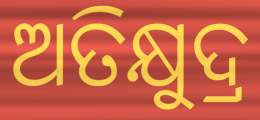
ଅତିକ୍ଷୁଦ୍ର